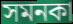
সমনকা